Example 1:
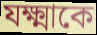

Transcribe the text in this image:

যক্ষ্মাকে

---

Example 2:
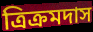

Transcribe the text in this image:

ত্রিক্রমদাস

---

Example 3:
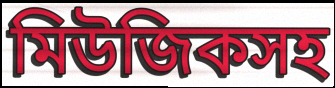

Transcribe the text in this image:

মিউজিকসহ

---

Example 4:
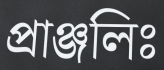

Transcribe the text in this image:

প্রাঞ্জলিঃ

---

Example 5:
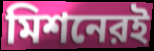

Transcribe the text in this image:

মিশনেরই